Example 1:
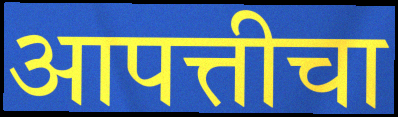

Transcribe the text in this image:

आपत्तीचा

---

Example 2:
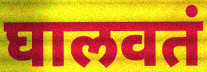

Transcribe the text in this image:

घालवतं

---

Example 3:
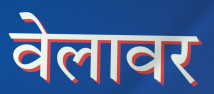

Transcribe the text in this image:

वेलावर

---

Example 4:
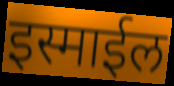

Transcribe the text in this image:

इस्माईल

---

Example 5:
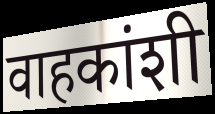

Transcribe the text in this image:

वाहकांशी